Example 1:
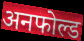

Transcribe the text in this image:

अनफोल्ड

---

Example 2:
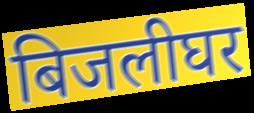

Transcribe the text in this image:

बिजलीघर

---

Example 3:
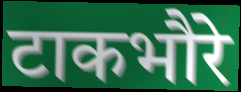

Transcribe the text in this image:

टाकभौरे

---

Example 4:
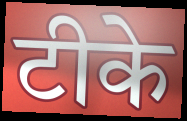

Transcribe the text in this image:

टीके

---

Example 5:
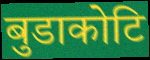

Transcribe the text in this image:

बुडाकोटि